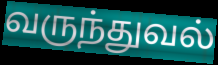
வருந்துவல்